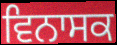
ਵਿਨਾਸਕ